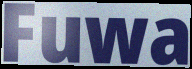
Fuwa